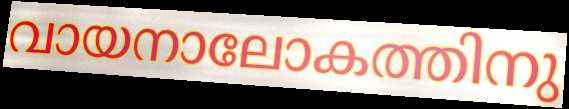
വായനാലോകത്തിനു